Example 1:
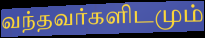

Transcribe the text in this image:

வந்தவர்களிடமும்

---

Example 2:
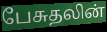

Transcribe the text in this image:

பேசுதலின்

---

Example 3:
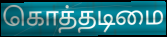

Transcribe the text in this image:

கொத்தடிமை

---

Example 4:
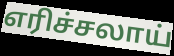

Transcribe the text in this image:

எரிச்சலாய்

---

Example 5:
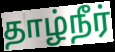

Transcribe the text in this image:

தாழ்நீர்